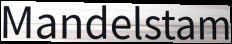
Mandelstam